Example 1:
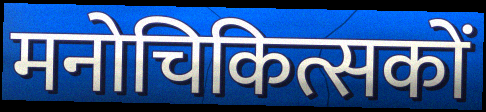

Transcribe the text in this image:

मनोचिकित्सकों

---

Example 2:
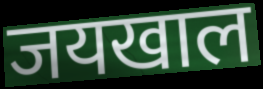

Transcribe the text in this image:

जयखाल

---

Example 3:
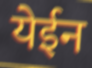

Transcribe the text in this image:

येईन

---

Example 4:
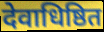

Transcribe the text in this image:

देवाधिष्ठित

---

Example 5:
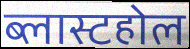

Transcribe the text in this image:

ब्लास्टहोल